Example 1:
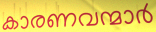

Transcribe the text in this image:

കാരണവന്മാർ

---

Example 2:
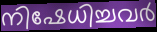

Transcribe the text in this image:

നിഷേധിച്ചവർ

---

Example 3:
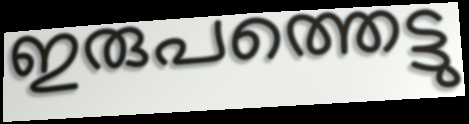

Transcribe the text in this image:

ഇരുപത്തെട്ടു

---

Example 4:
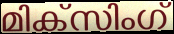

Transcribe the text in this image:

മിക്‌സിംഗ്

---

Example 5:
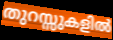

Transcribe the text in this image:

തുറസ്സുകളിൽ